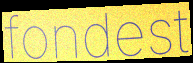
fondest